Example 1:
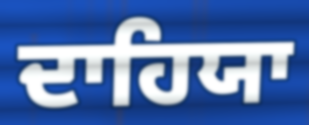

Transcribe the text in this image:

ਦਾਹਿਯਾ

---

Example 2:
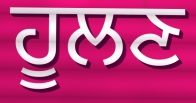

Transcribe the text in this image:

ਹੂਲਣ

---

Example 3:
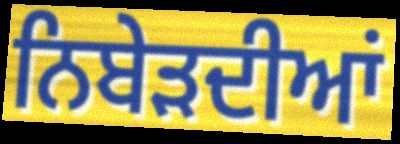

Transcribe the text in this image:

ਨਿਬੇੜਦੀਆਂ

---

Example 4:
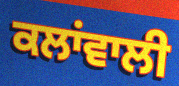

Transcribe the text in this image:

ਕਲਾਂਵਾਲੀ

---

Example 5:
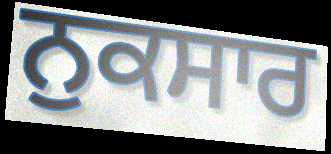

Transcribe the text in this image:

ਨੁਕਸਾਰ